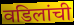
वडिलांची